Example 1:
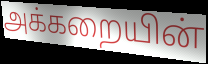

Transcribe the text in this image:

அக்கறையின்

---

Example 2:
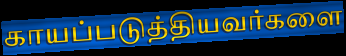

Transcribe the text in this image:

காயப்படுத்தியவர்களை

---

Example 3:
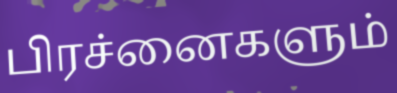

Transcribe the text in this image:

பிரச்னைகளும்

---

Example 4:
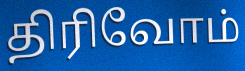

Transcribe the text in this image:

திரிவோம்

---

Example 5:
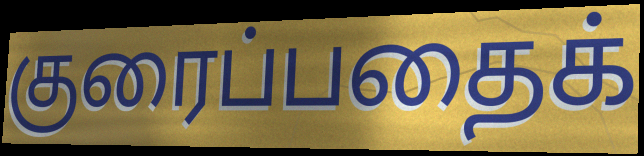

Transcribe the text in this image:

குரைப்பதைக்